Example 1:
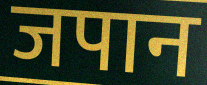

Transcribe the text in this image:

जपान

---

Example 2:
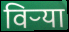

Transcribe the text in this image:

विऱ्या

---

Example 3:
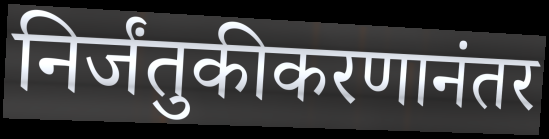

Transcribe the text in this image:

निर्जंतुकीकरणानंतर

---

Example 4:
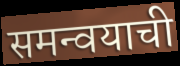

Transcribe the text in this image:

समन्वयाची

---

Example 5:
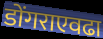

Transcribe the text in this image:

डोंगराएवढा